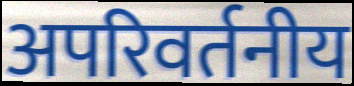
अपरिवर्तनीय